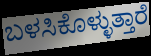
ಬಳಸಿಕೊಳ್ಳುತ್ತಾರೆ